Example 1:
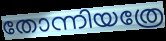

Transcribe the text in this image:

തോന്നിയത്രേ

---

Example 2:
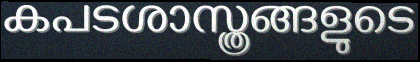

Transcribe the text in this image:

കപടശാസ്ത്രങ്ങളുടെ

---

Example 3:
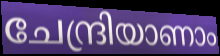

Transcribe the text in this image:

ചേന്ദ്രിയാണാം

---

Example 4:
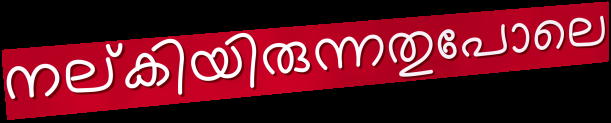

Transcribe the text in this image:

നല്കിയിരുന്നതുപോലെ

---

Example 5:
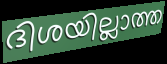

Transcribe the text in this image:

ദിശയില്ലാത്ത